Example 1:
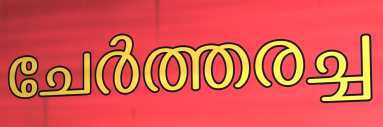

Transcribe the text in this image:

ചേർത്തരച്ച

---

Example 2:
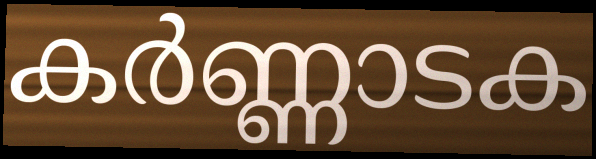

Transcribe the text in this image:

കർണ്ണാടക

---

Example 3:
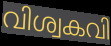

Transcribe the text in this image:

വിശ്വകവി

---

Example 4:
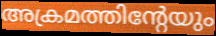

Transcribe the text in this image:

അക്രമത്തിന്റേയും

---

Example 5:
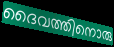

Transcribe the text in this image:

ദൈവത്തിനൊരു